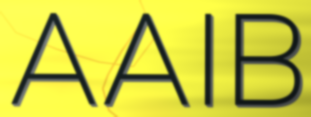
AAIB